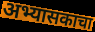
अभ्यासकाचा